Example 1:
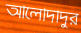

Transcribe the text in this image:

আলোদাদুর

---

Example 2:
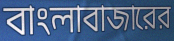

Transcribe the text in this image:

বাংলাবাজারের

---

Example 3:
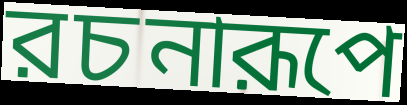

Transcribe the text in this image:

রচনারূপে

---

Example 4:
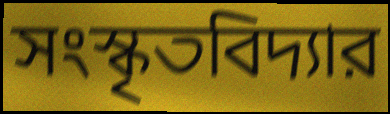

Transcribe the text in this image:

সংস্কৃতবিদ্যার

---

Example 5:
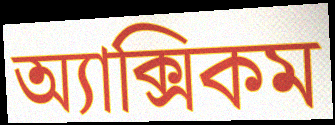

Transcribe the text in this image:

অ্যাক্সিকম